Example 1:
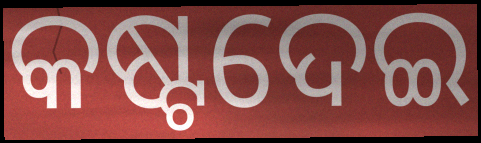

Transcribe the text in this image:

କଷ୍ଟଦେଇ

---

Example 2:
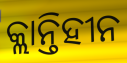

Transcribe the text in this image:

କ୍ଲାନ୍ତିହୀନ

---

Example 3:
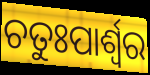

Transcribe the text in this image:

ଚତୁଃପାର୍ଶ୍ଵର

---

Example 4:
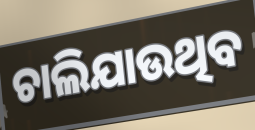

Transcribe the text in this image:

ଚାଲିଯାଉଥିବ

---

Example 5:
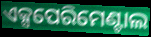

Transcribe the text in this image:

ଏକ୍ସପେରିମେଣ୍ଟାଲ